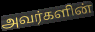
அவர்களின்